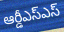
ఆర్డీఎస్ఎస్